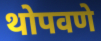
थोपवणे